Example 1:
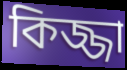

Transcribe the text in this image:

কিজ্জা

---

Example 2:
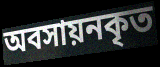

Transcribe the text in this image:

অবসায়নকৃত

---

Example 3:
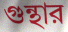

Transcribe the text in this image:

গুন্থার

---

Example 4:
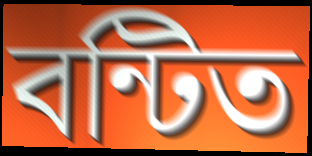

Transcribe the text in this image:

বন্টিত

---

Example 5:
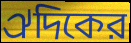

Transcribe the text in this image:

ঐদিকের